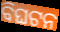
ବିଘଟନ